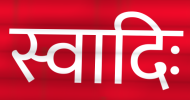
स्वादिः